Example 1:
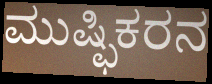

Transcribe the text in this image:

ಮುಷ್ಫಿಕರನ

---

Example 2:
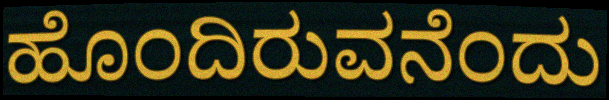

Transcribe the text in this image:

ಹೊಂದಿರುವನೆಂದು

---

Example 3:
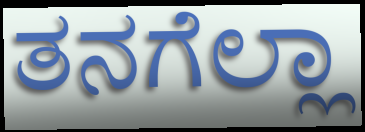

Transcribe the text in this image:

ತನಗೆಲ್ಲಾ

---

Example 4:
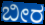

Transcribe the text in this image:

ಬೀರ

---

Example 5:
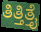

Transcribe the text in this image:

ತಿತ್ತಿತ್ತೈ